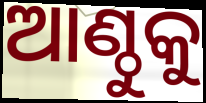
ଆଣ୍ଠୁକୁ